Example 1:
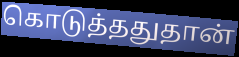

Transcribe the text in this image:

கொடுத்ததுதான்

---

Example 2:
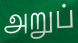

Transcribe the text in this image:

அறுப்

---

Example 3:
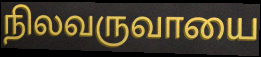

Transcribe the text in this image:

நிலவருவாயை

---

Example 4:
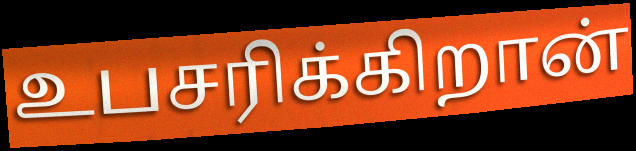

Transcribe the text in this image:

உபசரிக்கிறான்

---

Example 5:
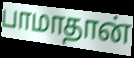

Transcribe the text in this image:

பாமாதான்